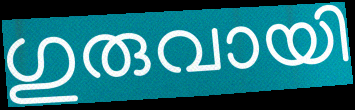
ഗുരുവായി